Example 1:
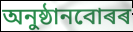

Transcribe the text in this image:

অনুষ্ঠানবোৰৰ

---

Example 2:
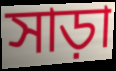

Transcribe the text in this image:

সাড়া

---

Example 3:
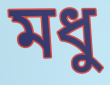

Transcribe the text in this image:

মধু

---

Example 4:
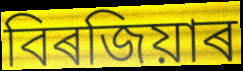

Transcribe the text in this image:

বিৰজিয়াৰ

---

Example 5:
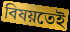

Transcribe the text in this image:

বিষয়তেই